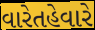
વારેતહેવારે